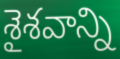
శైశవాన్ని